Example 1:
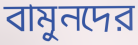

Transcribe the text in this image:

বামুনদের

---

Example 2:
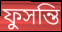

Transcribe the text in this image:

ফুসন্তি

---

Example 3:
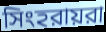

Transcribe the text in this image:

সিংহরায়রা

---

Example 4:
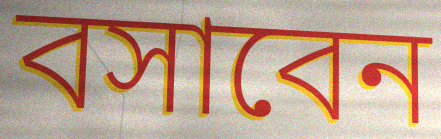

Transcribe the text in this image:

বসাবেন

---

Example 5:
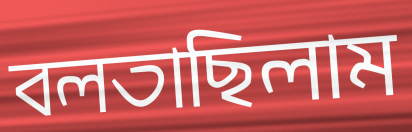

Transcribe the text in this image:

বলতাছিলাম